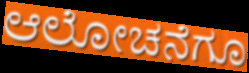
ಆಲೋಚನೆಗೂ